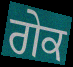
ਗੇਕ